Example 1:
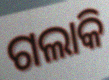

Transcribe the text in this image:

ଗଲାକି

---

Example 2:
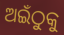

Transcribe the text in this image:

ଅଇଁଠୁକୁ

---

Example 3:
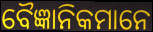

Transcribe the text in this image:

ବୈଜ୍ଞାନିକମାନେ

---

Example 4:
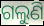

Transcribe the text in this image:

ଗଲୁଣି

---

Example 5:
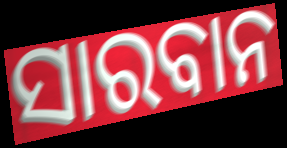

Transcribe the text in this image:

ସାରବାନ